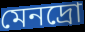
মেনদ্রো